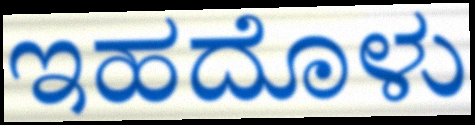
ಇಹದೊಳು